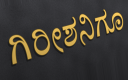
ಗಿರೀಶನಿಗೂ